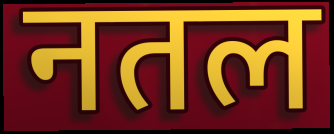
नतल